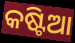
କଷ୍ଟିଆ